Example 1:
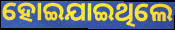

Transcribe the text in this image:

ହୋଇଯାଇଥିଲେ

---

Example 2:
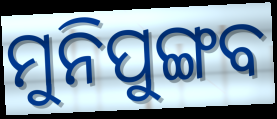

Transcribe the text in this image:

ମୁନିପୁଙ୍ଗବ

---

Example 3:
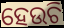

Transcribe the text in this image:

ହେଉଚି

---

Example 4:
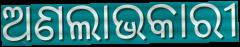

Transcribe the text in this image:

ଅଣଲାଭକାରୀ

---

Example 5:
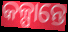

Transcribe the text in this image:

କଳ୍ପାନ୍ତେ